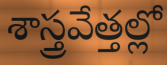
శాస్త్రవేత్తల్లో